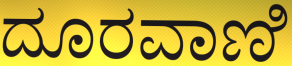
ದೂರವಾಣಿ